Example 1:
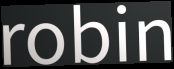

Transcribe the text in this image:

robin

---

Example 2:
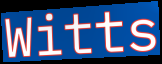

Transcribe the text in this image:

Witts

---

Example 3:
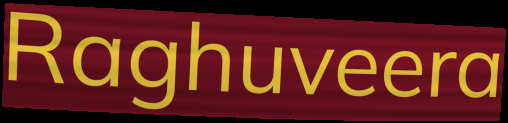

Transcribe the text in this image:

Raghuveera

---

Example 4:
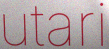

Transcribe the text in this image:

utari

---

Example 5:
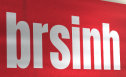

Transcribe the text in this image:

brsinh